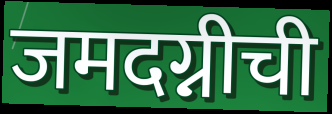
जमदग्नीची